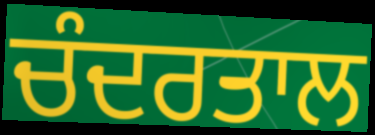
ਚੰਦਰਤਾਲ